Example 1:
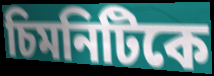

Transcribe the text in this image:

চিমনিটিকে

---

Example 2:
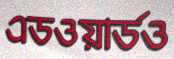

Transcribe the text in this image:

এডওয়ার্ডও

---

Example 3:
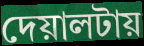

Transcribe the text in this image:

দেয়ালটায়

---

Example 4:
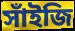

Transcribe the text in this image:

সাঁইজি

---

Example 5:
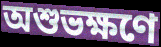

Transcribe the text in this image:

অশুভক্ষণে